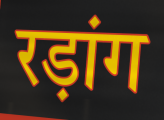
रड़ांग